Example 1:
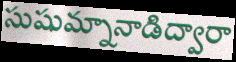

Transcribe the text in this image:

సుషుమ్నానాడిద్వారా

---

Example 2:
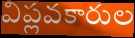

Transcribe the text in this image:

విప్లవకారుల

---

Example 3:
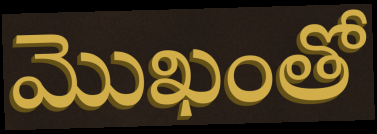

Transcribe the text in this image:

మొఖంతో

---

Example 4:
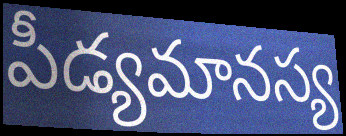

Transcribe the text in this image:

పీడ్యమానస్య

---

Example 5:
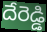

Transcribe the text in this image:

దేరెడ్డి